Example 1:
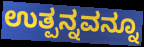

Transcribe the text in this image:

ಉತ್ಪನ್ನವನ್ನೂ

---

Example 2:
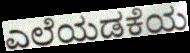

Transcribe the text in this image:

ಎಲೆಯಡಕೆಯ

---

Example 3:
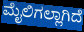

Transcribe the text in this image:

ಮೈಲಿಗಲ್ಲಾಗಿದೆ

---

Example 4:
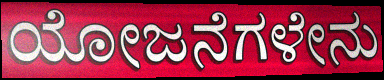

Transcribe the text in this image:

ಯೋಜನೆಗಳೇನು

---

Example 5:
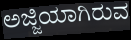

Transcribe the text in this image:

ಅಜ್ಜಿಯಾಗಿರುವ